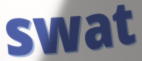
swat